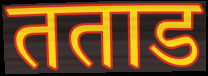
तताड